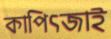
কাপিৎজাই